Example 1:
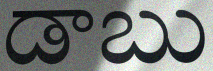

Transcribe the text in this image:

డాబు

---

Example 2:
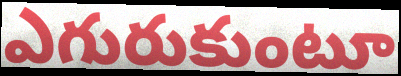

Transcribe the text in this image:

ఎగురుకుంటూ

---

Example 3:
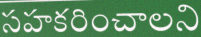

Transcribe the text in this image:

సహకరించాలని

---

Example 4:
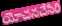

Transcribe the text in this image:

యోచనచేసిరి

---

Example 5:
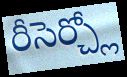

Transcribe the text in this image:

రీసెర్చ్లో